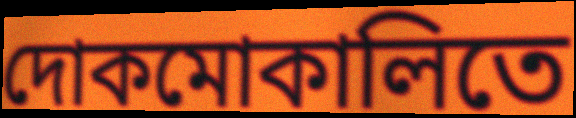
দোকমোকালিতে